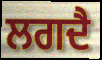
ਲਗਦੈ